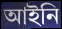
আইনি